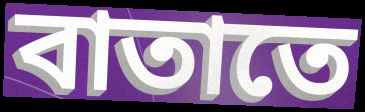
বাতাতে